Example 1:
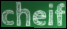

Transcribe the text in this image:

cheif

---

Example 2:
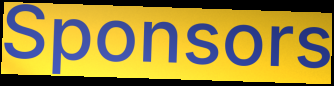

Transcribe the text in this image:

Sponsors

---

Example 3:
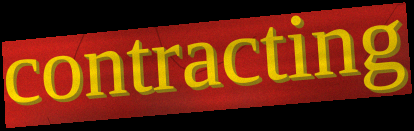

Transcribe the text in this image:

contracting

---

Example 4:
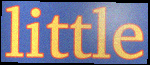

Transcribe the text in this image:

little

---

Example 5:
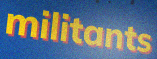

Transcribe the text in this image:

militants